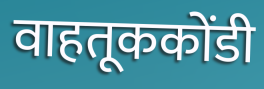
वाहतूककोंडी